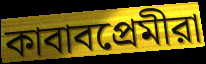
কাবাবপ্রেমীরা